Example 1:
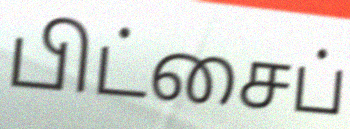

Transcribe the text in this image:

பிட்சைப்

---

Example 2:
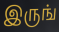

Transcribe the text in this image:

இருங்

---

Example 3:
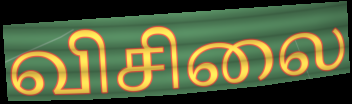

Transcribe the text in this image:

விசிலை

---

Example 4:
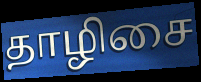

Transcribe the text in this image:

தாழிசை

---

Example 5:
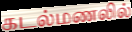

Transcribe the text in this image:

கடல்மணலில்